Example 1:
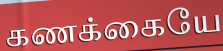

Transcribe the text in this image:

கணக்கையே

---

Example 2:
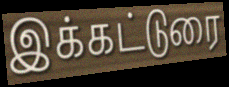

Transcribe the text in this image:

இக்கட்டுரை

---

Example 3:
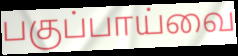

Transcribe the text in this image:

பகுப்பாய்வை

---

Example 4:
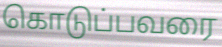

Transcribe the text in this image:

கொடுப்பவரை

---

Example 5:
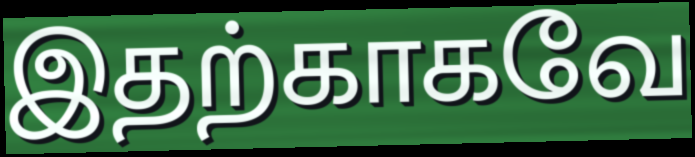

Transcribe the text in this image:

இதற்காகவே